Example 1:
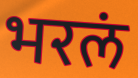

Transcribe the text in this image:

भरलं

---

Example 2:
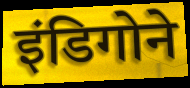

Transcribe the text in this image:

इंडिगोने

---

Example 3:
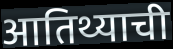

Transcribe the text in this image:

आतिथ्याची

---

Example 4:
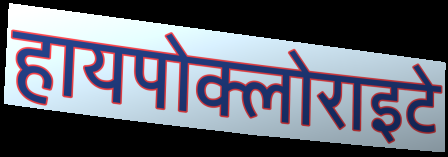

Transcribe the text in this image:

हायपोक्लोराइटे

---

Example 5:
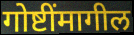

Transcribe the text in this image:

गोष्टींमागील